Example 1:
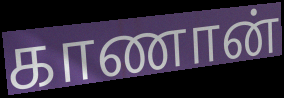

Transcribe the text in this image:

காணான்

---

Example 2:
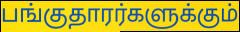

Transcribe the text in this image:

பங்குதாரர்களுக்கும்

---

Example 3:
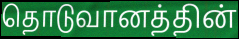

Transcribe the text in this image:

தொடுவானத்தின்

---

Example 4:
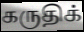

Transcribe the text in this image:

கருதிக்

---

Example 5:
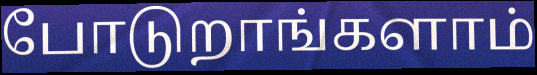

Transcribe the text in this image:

போடுறாங்களாம்